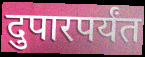
दुपारपर्यंत